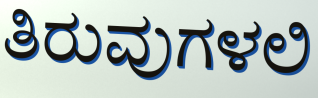
ತಿರುವುಗಳಲಿ